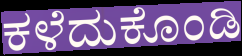
ಕಳೆದುಕೊಂಡಿ